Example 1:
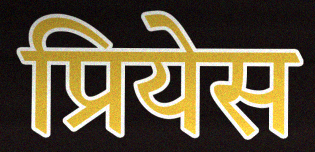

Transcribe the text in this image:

प्रियेस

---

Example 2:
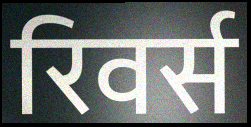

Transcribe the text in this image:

रिवर्स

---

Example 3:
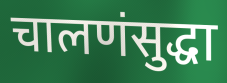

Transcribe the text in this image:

चालणंसुद्धा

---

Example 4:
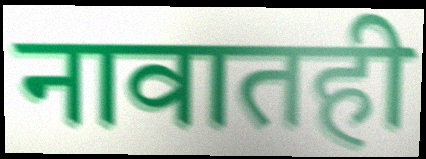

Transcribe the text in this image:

नावातही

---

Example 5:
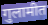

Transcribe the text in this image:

गुलामीत